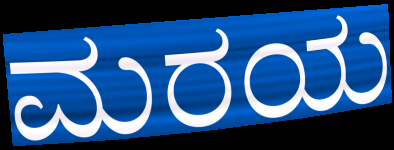
ಮರಯ